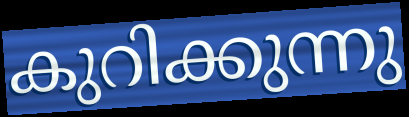
കുറിക്കുന്നു